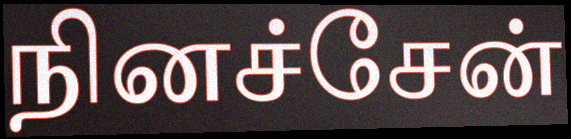
நினச்சேன்